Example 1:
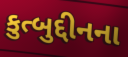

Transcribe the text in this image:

કુત્બુદ્દીનના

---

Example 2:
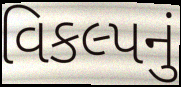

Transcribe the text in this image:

વિકલ્પનું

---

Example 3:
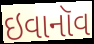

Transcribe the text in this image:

ઇવાનૉવ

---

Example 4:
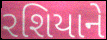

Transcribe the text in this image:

રશિયાને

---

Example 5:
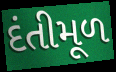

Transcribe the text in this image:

દંતીમૂળ